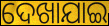
ଦେଖାଯାଇ